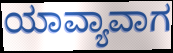
ಯಾವ್ಯಾವಾಗ